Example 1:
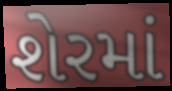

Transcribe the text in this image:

શેરમાં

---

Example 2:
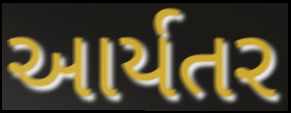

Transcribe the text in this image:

આર્યતર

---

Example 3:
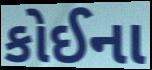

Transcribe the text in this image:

કોઈના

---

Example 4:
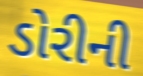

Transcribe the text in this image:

ડોરીની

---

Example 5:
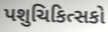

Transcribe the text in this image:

પશુચિકિત્સકો